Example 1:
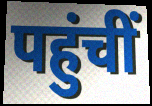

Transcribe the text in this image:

पहुंचीं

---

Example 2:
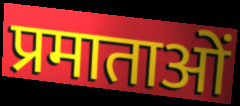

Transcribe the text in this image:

प्रमाताओं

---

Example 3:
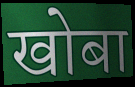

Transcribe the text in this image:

खोबा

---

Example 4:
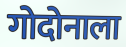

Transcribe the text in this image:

गोदोनाला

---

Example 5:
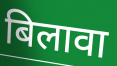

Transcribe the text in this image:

बिलावा